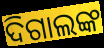
ଦିଗାଲଙ୍କ